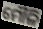
ମୌଳି